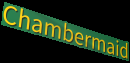
Chambermaid